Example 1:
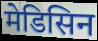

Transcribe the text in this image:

मेडिसिन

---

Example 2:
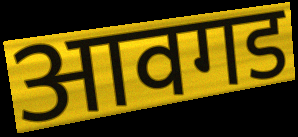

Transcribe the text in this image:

आवगड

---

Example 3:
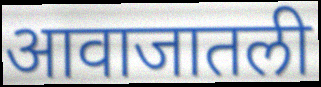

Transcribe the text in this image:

आवाजातली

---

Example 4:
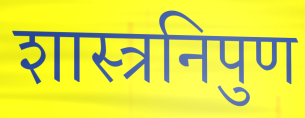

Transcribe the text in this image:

शास्त्रनिपुण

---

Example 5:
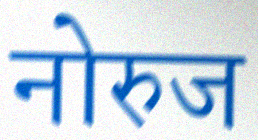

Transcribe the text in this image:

नोरुज